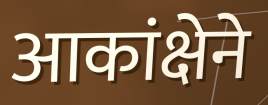
आकांक्षेने